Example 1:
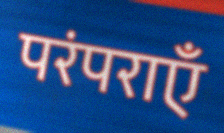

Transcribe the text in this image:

परंपराएँ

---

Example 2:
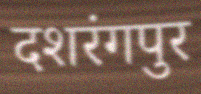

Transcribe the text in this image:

दशरंगपुर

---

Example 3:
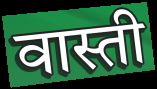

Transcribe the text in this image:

वास्ती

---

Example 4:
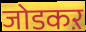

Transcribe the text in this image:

जोडकऱ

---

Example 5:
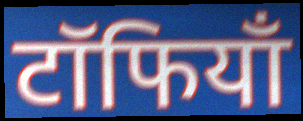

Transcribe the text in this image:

टॉफियाँ